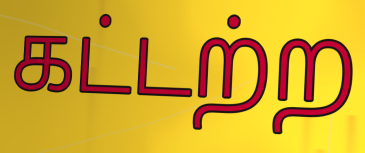
கட்டற்ற